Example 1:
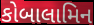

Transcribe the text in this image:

કોબાલામિન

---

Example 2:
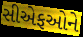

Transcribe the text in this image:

સીએફઓને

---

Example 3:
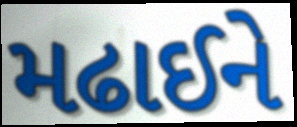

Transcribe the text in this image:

મઢાઈને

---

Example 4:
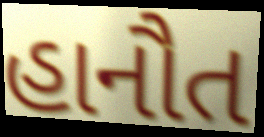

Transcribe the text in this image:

હાનૌત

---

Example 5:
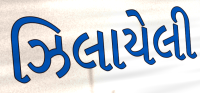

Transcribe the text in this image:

ઝિલાયેલી